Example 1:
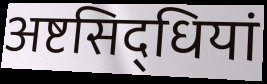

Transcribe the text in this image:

अष्टसिद्धियां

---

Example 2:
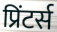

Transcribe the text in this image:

प्रिंटर्स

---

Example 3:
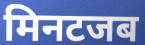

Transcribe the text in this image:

मिनटजब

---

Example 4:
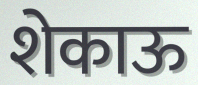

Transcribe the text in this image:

शेकाऊ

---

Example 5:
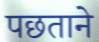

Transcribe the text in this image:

पछताने